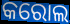
କରୋଲ